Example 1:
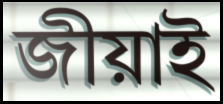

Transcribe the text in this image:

জীয়াই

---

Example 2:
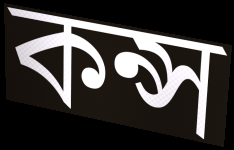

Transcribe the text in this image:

কন্স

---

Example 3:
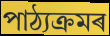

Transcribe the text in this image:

পাঠ্যক্ৰমৰ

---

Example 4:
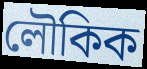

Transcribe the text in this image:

লৌকিক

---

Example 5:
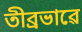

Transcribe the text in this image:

তীব্ৰভাৱে